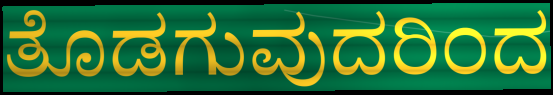
ತೊಡಗುವುದರಿಂದ